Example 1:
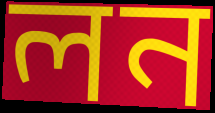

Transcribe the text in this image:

লন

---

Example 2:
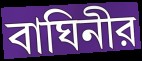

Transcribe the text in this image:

বাঘিনীর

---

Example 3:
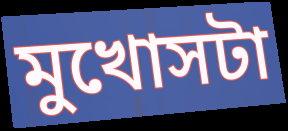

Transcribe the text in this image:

মুখোসটা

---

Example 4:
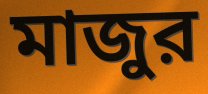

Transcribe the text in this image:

মাজুর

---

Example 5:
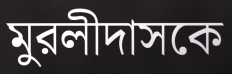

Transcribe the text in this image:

মুরলীদাসকে